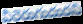
వీరెరుగుదురని